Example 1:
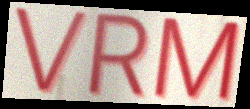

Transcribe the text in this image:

VRM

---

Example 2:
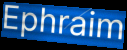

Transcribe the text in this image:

Ephraim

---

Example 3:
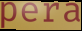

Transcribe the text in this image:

pera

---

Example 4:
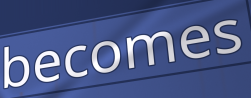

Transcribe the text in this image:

becomes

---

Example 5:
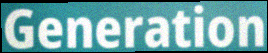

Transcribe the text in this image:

Generation